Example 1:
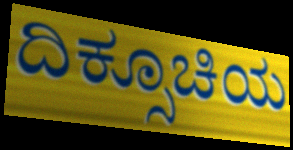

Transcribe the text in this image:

ದಿಕ್ಸೂಚಿಯ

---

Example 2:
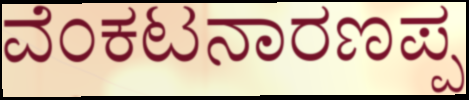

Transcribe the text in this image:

ವೆಂಕಟನಾರಣಪ್ಪ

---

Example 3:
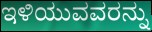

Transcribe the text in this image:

ಇಳಿಯುವವರನ್ನು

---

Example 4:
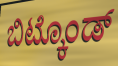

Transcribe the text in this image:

ಬಿಟ್ಕೊಂಡ್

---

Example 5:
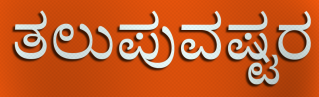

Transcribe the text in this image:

ತಲುಪುವಷ್ಟರ